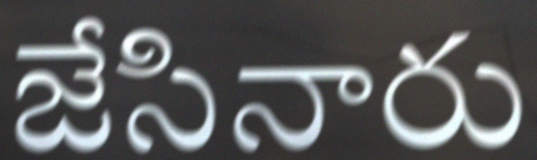
జేసినారు